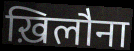
ख़िलौना